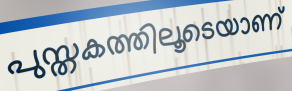
പുസ്തകത്തിലൂടെയാണ്